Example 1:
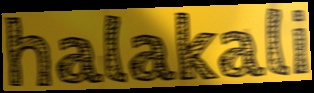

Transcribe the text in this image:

halakali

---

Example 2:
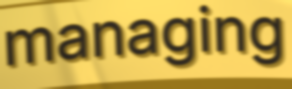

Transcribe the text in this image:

managing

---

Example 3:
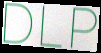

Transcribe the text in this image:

DLP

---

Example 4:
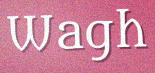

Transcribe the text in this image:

Wagh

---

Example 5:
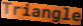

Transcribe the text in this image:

Triangle